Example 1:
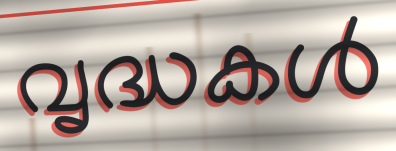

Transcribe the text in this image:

വൃദ്ധകൾ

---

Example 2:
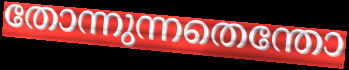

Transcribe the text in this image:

തോന്നുന്നതെന്തോ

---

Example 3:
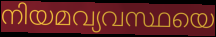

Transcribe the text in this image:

നിയമവ്യവസ്ഥയെ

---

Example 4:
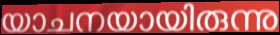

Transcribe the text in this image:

യാചനയായിരുന്നു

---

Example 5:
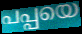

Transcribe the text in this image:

പപ്പയെ